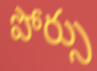
పోర్సు